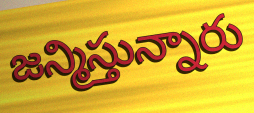
జన్మిస్తున్నారు